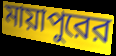
মায়াপুরের